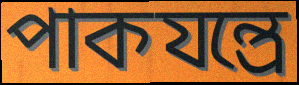
পাকযন্ত্রে